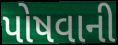
પોષવાની